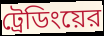
ট্রেডিংয়ের